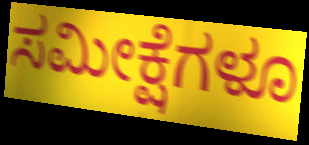
ಸಮೀಕ್ಷೆಗಳೂ